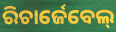
ରିଚାର୍ଜେବେଲ୍